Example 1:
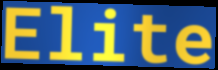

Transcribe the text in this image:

Elite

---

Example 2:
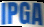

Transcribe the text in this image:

IPGA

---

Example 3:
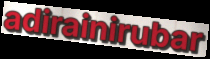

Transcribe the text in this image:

adirainirubar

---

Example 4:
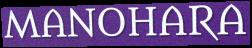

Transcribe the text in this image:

MANOHARA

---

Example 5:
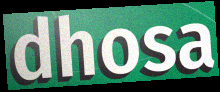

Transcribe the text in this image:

dhosa